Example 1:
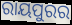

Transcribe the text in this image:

ରାୟପୁରର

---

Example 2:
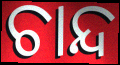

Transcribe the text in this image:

ଚାନ୍ଦ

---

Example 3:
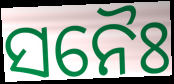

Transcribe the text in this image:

ସନୈଃ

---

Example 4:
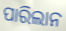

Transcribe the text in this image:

ପାରିଲାନ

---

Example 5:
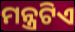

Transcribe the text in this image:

ମନ୍ତ୍ରଟିଏ